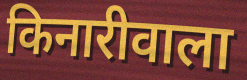
किनारीवाला